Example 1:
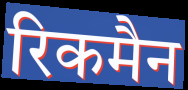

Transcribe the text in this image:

रिकमैन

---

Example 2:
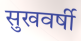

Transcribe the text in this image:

सुखवर्षी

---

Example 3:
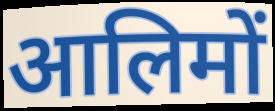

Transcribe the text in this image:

आलिमों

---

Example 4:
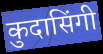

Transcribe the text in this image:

कुदासिंगी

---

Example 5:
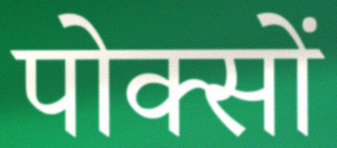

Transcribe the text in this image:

पोक्सों